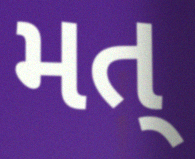
મત્